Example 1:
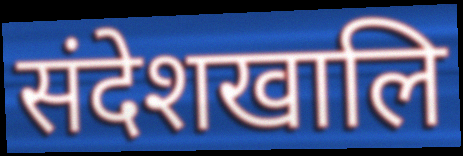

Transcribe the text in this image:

संदेशखालि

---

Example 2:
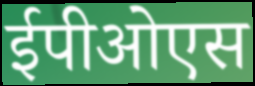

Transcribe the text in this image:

ईपीओएस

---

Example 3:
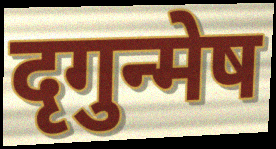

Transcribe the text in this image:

दृगुन्मेष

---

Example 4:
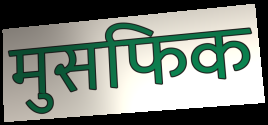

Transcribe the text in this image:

मुसफिक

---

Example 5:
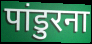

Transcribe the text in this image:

पांडुरना